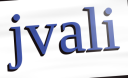
jvali